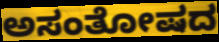
ಅಸಂತೋಷದ